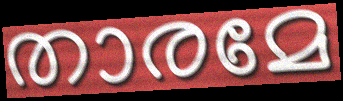
താരമേ